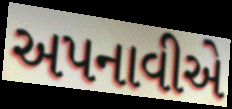
અપનાવીએ